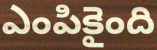
ఎంపికైంది